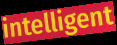
intelligent